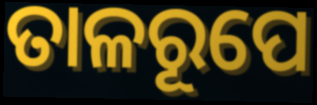
ତାଳରୂପେ